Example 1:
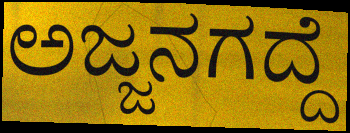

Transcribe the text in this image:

ಅಜ್ಜನಗದ್ದೆ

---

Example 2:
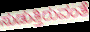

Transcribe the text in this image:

ಸುಡುತ್ತಿರುವಂತೆ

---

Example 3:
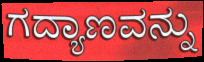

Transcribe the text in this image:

ಗದ್ಯಾಣವನ್ನು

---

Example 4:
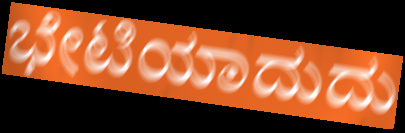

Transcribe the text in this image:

ಭೇಟಿಯಾದುದು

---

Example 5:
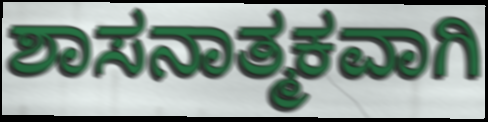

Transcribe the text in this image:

ಶಾಸನಾತ್ಮಕವಾಗಿ